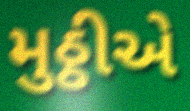
મુઠ્ઠીએ